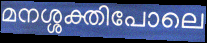
മനശ്ശക്തിപോലെ